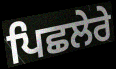
ਪਿਛਲੇਰੇ